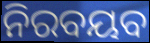
ନିରବୟବ